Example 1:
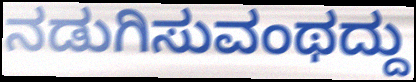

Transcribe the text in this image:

ನಡುಗಿಸುವಂಥದ್ದು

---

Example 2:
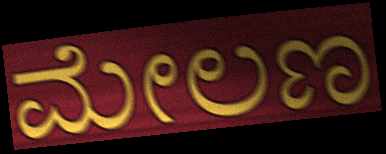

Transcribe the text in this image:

ಮೇಲಣ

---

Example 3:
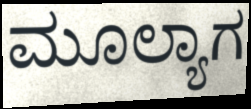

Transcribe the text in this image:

ಮೂಲ್ಯಾಗ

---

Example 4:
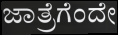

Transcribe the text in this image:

ಜಾತ್ರೆಗೆಂದೇ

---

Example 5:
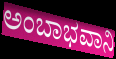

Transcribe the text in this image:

ಅಂಬಾಭವಾನಿ